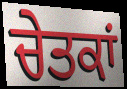
ਚੇਤਕਾਂ